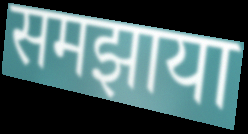
समझाया